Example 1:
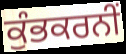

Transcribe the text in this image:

ਕੁੰਭਕਰਨੀਂ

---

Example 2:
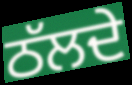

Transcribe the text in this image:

ਠੱਲਦੇ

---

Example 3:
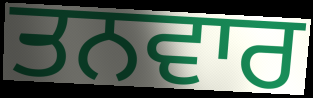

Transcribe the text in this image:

ਤਨਵਾਰ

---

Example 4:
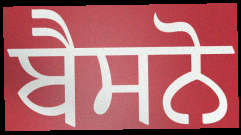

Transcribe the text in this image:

ਬੈਸਨੋ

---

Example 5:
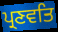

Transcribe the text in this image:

ਪ੍ਰਣਵਤਿ